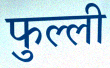
फुल्ली